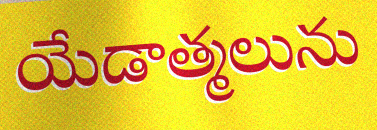
యేడాత్మలును